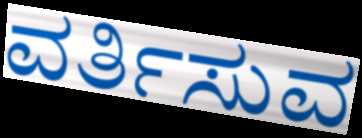
ವರ್ತಿಸುವ